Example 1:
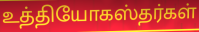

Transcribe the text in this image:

உத்தியோகஸ்தர்கள்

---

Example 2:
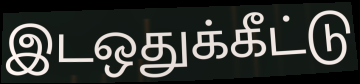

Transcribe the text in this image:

இடஒதுக்கீட்டு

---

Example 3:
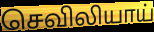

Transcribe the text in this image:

செவிலியாய்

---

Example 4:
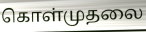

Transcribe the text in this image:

கொள்முதலை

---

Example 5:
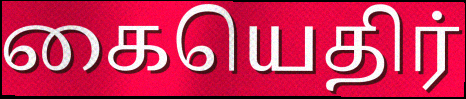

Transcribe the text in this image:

கையெதிர்